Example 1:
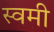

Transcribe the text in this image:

स्वमी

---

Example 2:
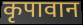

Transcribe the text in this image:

कृपावान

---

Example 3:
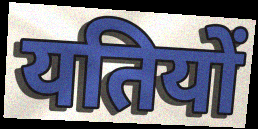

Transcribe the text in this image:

यतियों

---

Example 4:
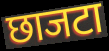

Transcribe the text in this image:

छाजटा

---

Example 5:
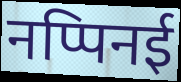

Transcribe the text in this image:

नप्पिनई